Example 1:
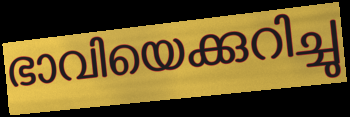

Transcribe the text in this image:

ഭാവിയെക്കുറിച്ചു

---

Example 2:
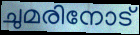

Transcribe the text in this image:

ചുമരിനോട്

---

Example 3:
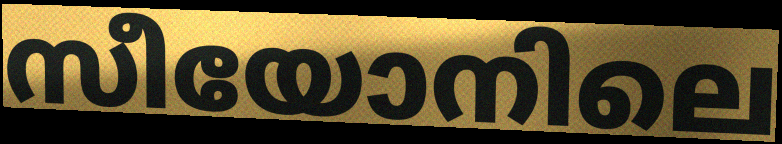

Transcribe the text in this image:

സീയോനിലെ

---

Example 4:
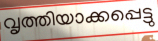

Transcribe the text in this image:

വൃത്തിയാക്കപ്പെട്ടു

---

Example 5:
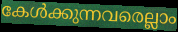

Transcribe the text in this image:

കേൾക്കുന്നവരെല്ലാം